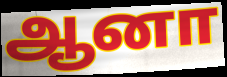
ஆனா